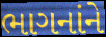
ભાગનાંને